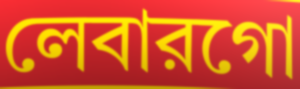
লেবারগো